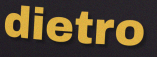
dietro